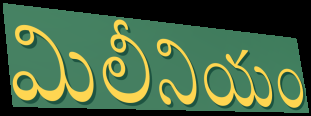
మిలీనియం